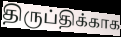
திருப்திக்காக